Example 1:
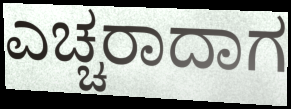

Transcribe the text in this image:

ಎಚ್ಚರಾದಾಗ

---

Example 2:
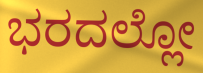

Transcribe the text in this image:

ಭರದಲ್ಲೋ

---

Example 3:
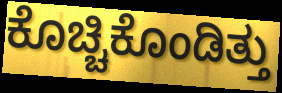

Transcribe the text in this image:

ಕೊಚ್ಚಿಕೊಂಡಿತ್ತು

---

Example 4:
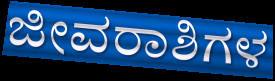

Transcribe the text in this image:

ಜೀವರಾಶಿಗಳ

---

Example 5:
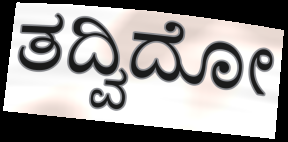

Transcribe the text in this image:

ತದ್ವಿದೋ